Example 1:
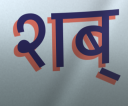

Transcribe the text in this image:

शब्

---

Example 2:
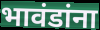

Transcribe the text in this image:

भावंडांना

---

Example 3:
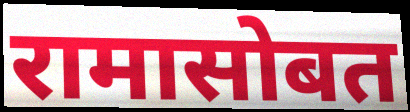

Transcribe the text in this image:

रामासोबत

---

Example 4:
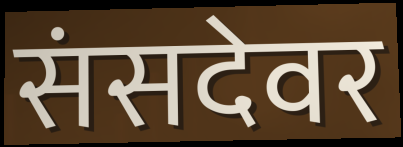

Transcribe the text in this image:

संसदेवर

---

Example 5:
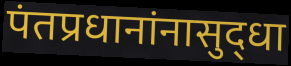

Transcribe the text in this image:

पंतप्रधानांनासुद्धा